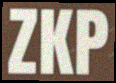
ZKP